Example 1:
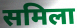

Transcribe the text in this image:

समिला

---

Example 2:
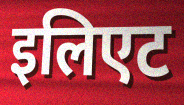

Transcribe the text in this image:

इलिएट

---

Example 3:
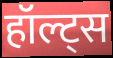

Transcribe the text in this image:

हॉल्ट्स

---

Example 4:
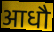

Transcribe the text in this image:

आधौ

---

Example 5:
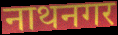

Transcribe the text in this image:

नाथनगर